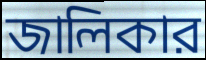
জালিকার